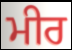
ਮੀਰ